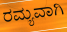
ರಮ್ಯವಾಗಿ